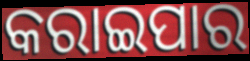
କରାଇପାର